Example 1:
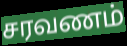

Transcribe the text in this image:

சரவணம்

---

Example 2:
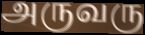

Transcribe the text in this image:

அருவரு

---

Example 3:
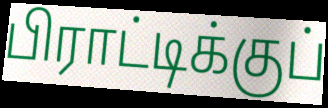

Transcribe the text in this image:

பிராட்டிக்குப்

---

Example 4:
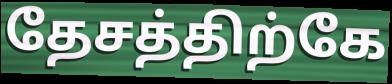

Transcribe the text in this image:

தேசத்திற்கே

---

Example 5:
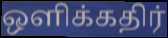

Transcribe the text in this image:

ஒளிக்கதிர்